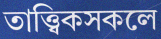
তাত্ত্বিকসকলে